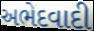
અભેદવાદી